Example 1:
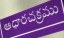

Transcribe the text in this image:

ఆధారచక్రము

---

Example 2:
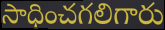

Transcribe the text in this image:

సాధించగలిగారు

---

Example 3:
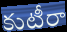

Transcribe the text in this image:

కుటీరా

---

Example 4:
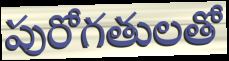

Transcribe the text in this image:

పురోగతులతో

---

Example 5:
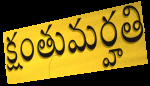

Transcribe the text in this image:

క్షంతుమర్హతి